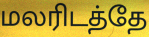
மலரிடத்தே